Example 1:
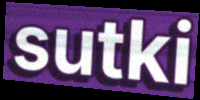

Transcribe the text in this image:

sutki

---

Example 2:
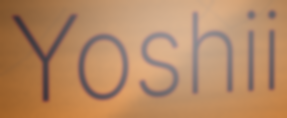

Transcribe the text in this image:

Yoshii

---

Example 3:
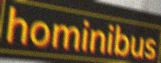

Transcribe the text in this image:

hominibus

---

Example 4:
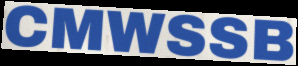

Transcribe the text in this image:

CMWSSB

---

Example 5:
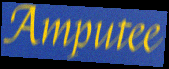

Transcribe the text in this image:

Amputee